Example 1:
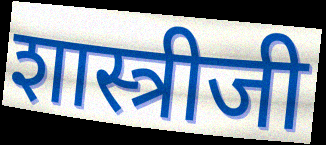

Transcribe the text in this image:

शास्त्रीजी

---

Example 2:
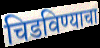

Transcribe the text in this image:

चिडविण्याचा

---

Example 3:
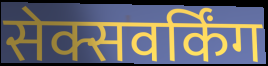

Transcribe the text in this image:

सेक्सवर्किंग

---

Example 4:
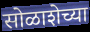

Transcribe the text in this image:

सोळाशेच्या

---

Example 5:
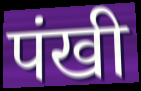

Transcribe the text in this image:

पंखी